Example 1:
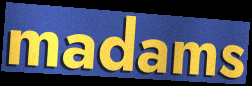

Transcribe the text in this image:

madams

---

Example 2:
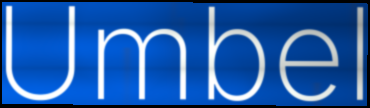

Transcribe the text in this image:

Umbel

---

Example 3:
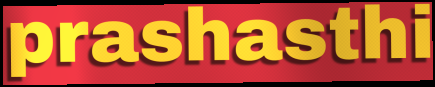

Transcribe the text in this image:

prashasthi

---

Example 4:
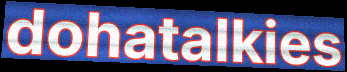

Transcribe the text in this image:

dohatalkies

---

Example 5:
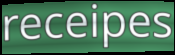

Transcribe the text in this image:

receipes